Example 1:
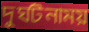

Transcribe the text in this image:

দুর্ঘটনাময়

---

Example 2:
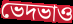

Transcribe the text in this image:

ভেদভাও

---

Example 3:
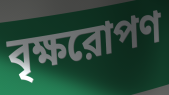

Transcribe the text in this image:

বৃক্ষরোপণ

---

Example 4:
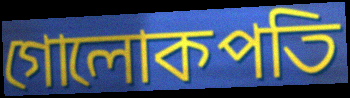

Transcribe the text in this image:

গোলোকপতি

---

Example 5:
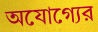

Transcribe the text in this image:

অযোগ্যের